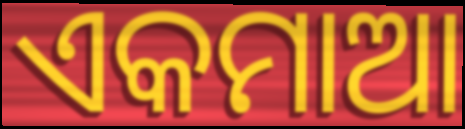
ଏକମାଆ